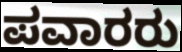
ಪವಾರರು